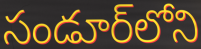
సండూర్‌లోని